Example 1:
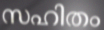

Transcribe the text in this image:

സഹിതം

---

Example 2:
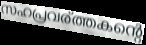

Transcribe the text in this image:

സഹപ്രവര്ത്തകന്റെ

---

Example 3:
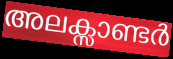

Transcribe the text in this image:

അലക്സാണ്ടർ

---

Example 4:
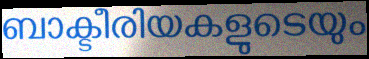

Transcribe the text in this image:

ബാക്ടീരിയകളുടെയും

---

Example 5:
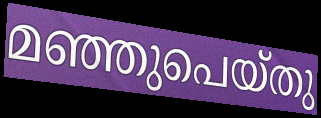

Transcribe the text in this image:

മഞ്ഞുപെയ്തു